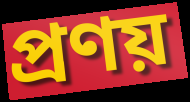
প্রণয়